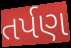
તર્પણ